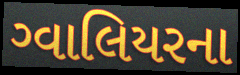
ગ્વાલિયરના